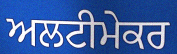
ਅਲਟੀਮੇਕਰ